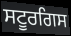
ਸਟੂਰਗਿਸ